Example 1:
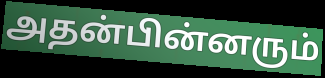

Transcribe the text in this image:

அதன்பின்னரும்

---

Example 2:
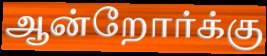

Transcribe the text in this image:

ஆன்றோர்க்கு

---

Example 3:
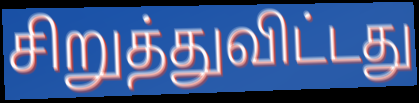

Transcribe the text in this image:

சிறுத்துவிட்டது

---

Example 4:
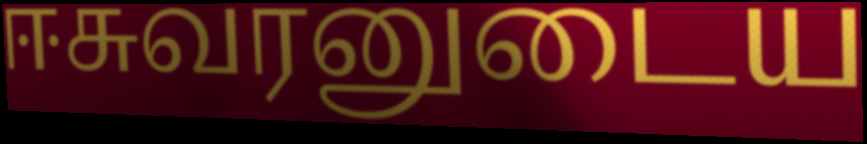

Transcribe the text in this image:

ஈசுவரனுடைய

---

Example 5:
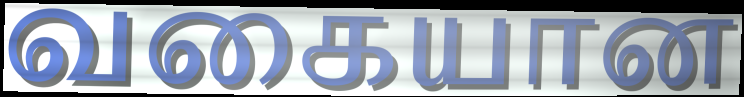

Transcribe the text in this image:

வகையான